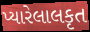
પ્યારેલાલકૃત